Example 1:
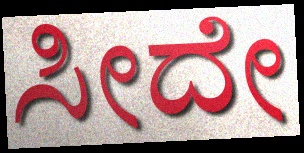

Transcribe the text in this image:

ಸೀದೇ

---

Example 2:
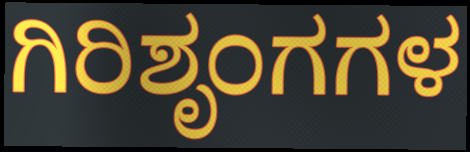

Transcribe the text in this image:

ಗಿರಿಶೃಂಗಗಳ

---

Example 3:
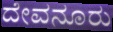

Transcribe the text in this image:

ದೇವನೂರು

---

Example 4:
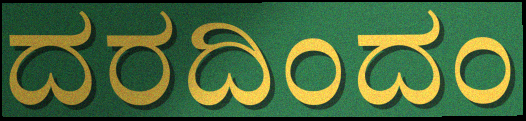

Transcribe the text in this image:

ದರದಿಂದಂ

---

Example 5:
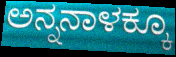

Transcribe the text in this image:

ಅನ್ನನಾಳಕ್ಕೂ